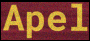
Apel